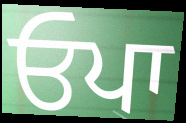
ਓਪਾ